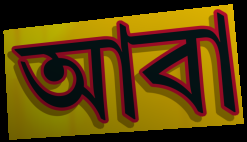
আবা